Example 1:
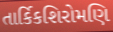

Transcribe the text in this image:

તાર્કિકશિરોમણિ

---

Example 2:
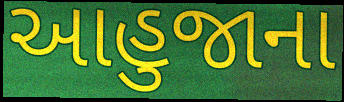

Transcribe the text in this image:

આહુજાના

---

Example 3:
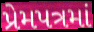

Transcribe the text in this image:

પ્રેમપત્રમાં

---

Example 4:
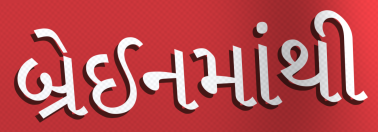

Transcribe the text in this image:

બ્રેઈનમાંથી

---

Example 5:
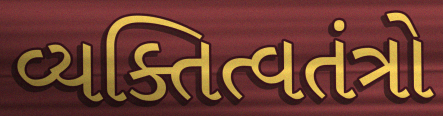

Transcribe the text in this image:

વ્યક્તિત્વતંત્રો